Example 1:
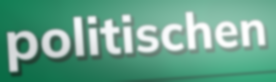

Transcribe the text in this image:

politischen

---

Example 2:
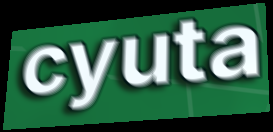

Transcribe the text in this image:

cyuta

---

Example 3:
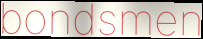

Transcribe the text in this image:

bondsmen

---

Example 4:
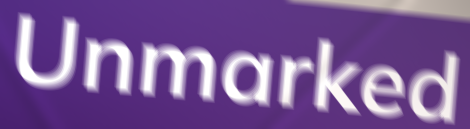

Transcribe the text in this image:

Unmarked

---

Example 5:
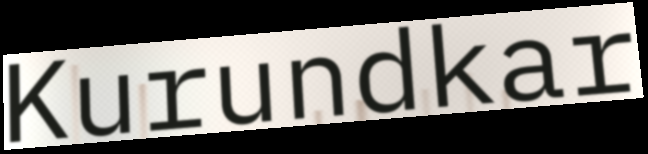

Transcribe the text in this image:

Kurundkar